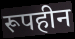
रूपहीन